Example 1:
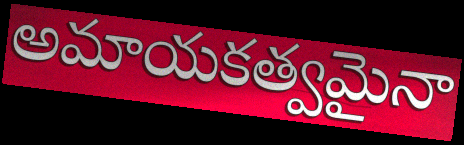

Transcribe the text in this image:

అమాయకత్వమైనా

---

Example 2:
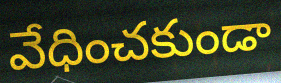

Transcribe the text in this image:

వేధించకుండా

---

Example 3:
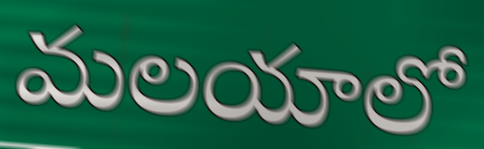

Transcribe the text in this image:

మలయాలో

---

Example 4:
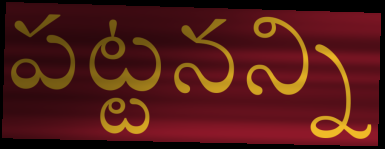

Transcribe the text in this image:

పట్టనన్ని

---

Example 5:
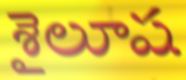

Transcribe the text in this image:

శైలూష